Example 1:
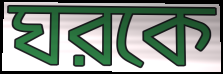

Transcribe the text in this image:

ঘরকে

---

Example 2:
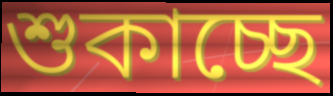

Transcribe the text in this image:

শুকাচ্ছে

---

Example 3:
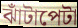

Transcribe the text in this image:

ঝাঁটাপেটা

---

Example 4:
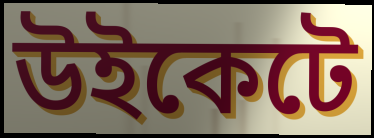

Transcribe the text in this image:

উইকেটে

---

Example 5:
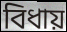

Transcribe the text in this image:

বিধায়